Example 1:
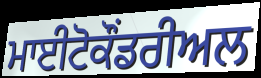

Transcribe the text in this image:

ਮਾਈਟੋਕੌਂਡਰੀਅਲ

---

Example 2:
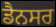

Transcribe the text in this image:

ਡੈਨਸਰ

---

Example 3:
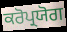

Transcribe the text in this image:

ਕਰੋਪ੍ਰਯੋਗ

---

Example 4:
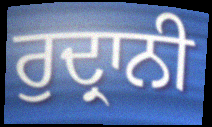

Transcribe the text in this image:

ਰੁਦ੍ਰਾਨੀ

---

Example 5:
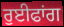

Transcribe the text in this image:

ਰੁਈਫਾਂਗ